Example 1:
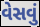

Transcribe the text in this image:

વેસવું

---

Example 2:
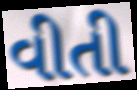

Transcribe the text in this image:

વીતી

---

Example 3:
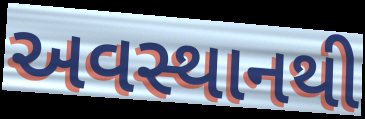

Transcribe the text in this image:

અવસ્થાનથી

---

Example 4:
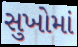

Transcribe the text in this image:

સુખોમાં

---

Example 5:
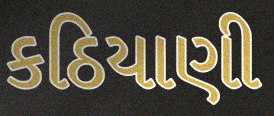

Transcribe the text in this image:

કઠિયાણી